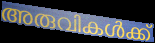
അരുവികൾക്ക്